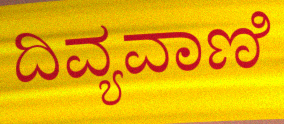
ದಿವ್ಯವಾಣಿ